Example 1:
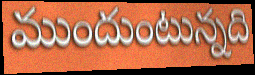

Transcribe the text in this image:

ముందుంటున్నది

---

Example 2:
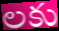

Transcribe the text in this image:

లకు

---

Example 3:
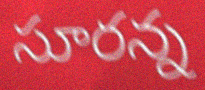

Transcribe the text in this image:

సూరన్న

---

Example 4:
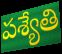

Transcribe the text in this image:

పశ్యేతి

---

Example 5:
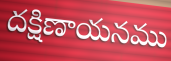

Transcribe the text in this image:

దక్షిణాయనము